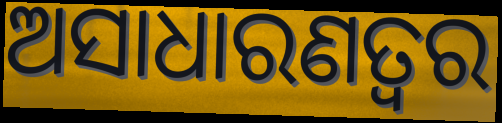
ଅସାଧାରଣତ୍ୱର